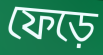
ফেড়ে